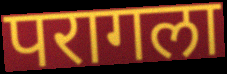
परागला